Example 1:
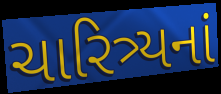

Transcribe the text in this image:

ચારિત્ર્યનાં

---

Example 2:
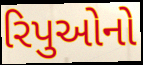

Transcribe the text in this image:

રિપુઓનો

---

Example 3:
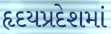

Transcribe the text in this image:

હૃદયપ્રદેશમાં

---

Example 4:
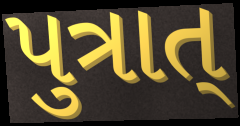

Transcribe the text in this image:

પુત્રાત્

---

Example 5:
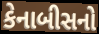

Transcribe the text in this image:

કેનાબીસનો